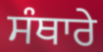
ਸੰਥਾਰੇ